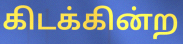
கிடக்கின்ற